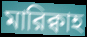
মারিক্বাহ